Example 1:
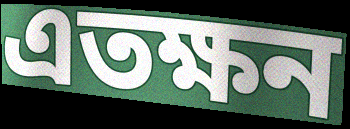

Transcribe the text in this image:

এতক্ষন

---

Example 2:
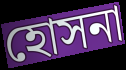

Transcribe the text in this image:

হোসনা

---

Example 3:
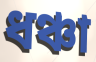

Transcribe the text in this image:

ধঞ্চা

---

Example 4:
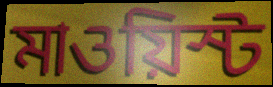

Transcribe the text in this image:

মাওয়িস্ট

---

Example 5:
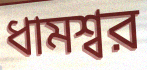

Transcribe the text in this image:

ধামশ্বর